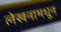
लेखनामधून